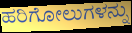
ಹರಿಗೋಲುಗಳನ್ನು